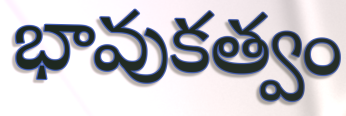
భావుకత్వం